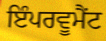
ਇੰਪਰਵੂਮੈਂਟ